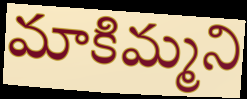
మాకిమ్మని